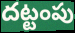
దట్టంపు